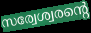
സര്വേശ്വരന്റെ